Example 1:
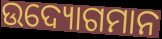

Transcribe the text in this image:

ଉଦ୍ୟୋଗମାନ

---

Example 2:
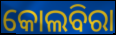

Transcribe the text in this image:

କୋଲବିରା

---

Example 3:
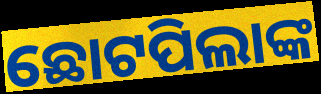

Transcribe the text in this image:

ଛୋଟପିଲାଙ୍କ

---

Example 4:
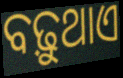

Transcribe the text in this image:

ବଢ଼ୁଥାଏ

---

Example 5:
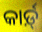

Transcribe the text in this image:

କାର୍ଡ଼୍